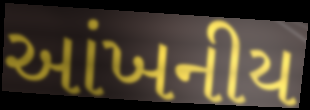
આંખનીય